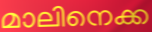
മാലിനെക്ക